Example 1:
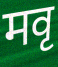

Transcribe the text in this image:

मवृ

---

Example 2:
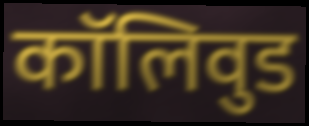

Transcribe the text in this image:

कॉलिवुड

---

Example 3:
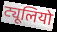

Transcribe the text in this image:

ट्यूलियो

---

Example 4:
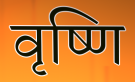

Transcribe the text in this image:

वृष्णि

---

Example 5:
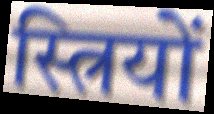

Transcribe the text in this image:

स्‍त्रियों